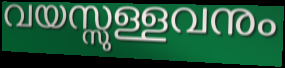
വയസ്സുള്ളവനും